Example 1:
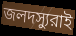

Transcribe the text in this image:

জলদস্যুরাই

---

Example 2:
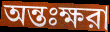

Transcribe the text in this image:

অন্তঃক্ষরা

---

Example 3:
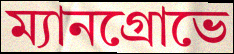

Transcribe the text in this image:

ম্যানগ্রোভে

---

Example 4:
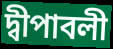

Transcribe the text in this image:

দ্বীপাবলী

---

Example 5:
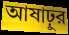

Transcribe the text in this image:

আষাঢ়ুর